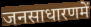
जनसाधारणमें